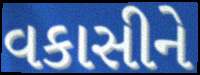
વકાસીને